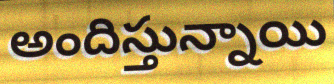
అందిస్తున్నాయి